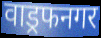
वाड्रफनगर